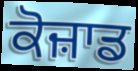
ਕੋਜ਼ਾਡ